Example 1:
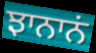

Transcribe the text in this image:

ਝਾਨਾਨਂ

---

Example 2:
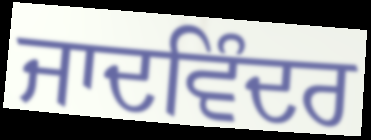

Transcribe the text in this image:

ਜਾਦਵਿੰਦਰ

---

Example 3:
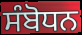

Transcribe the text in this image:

ਸੰਬੋਧਨ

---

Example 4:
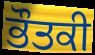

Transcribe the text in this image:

ਭੌਤਕੀ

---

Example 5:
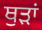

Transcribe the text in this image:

ਥੁੜਾਂ